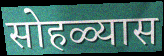
सोहळ्यास